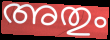
അതും